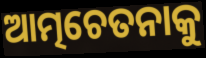
ଆତ୍ମଚେତନାକୁ